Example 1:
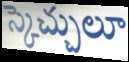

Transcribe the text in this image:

స్కెచ్చులూ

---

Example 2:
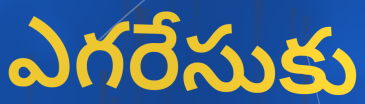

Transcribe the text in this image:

ఎగరేసుకు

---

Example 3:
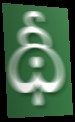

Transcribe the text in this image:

థీ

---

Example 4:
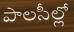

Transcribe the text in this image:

పాలసీల్లో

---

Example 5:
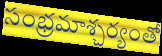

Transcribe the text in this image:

సంభ్రమాశ్చర్యంతో